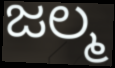
ಜಲ್ಮ